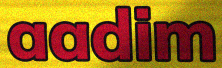
aadim